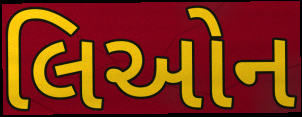
લિઓન